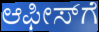
ಆಫೀಸ್‍ಗೆ